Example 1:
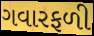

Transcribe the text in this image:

ગવારફળી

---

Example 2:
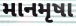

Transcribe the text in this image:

માનમૃષા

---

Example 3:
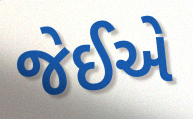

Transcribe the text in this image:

જેઈએ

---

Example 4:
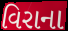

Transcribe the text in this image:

વિરાના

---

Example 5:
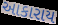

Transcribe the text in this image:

આકારાય